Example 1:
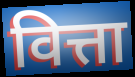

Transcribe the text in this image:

वित्ता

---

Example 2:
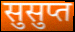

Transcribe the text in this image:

सुसुप्त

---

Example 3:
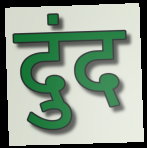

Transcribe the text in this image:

दुंद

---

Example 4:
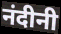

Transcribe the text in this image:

नंदीनी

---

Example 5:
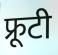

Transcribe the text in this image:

फ्रूटी